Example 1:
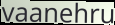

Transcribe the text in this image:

vaanehru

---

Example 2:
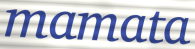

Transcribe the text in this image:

mamata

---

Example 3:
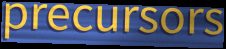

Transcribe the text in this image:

precursors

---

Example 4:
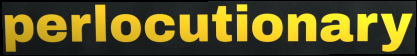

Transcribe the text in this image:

perlocutionary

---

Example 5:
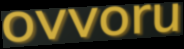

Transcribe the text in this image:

ovvoru